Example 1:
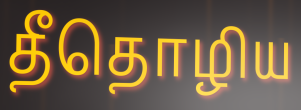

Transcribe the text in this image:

தீதொழிய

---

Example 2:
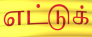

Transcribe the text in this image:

எட்டுக்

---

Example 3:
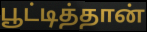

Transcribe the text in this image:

பூட்டித்தான்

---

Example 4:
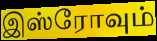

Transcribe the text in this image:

இஸ்ரோவும்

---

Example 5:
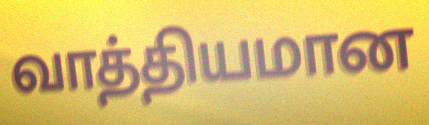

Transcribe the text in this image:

வாத்தியமான